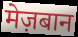
मेज़बान